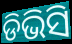
ଡିଭିସି